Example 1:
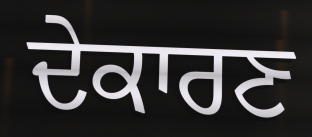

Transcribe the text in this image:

ਦੇਕਾਰਣ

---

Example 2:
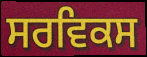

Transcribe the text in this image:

ਸਰਵਿਕਸ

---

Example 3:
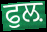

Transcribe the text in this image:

ਫੁਲ਼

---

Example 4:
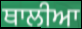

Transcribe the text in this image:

ਥਾਲੀਆ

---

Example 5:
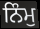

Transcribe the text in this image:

ਨਿੰਮੁ